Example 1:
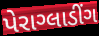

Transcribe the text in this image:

પેરાગ્લાડીંગ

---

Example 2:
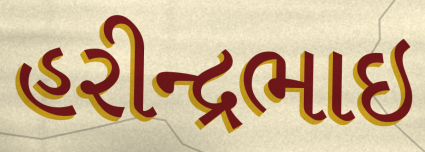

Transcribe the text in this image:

હરીન્દ્રભાઇ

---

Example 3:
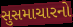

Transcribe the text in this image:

સુસમાચારનો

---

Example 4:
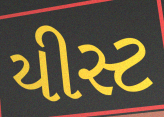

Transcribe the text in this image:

યીસ્ટ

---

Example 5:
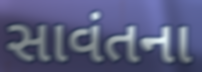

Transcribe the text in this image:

સાવંતના